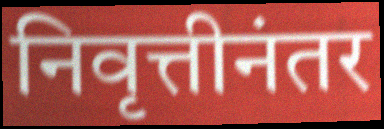
निवृत्तीनंतर